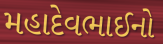
મહાદેવભાઈનો